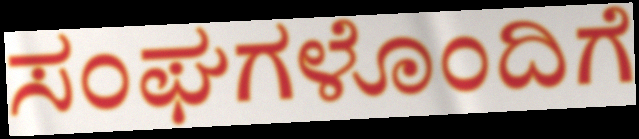
ಸಂಘಗಳೊಂದಿಗೆ